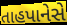
તાહપાનેસે